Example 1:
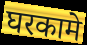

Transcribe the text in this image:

घरकामे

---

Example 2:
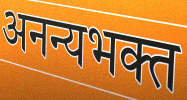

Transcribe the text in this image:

अनन्यभक्त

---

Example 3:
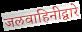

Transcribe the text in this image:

जलवाहिनीद्वारे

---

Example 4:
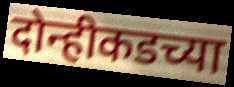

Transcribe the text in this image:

दोन्हीकडच्या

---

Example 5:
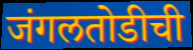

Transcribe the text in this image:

जंगलतोडीची